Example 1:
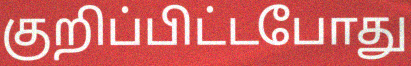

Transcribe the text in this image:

குறிப்பிட்டபோது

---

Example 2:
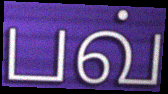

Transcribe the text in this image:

பவ்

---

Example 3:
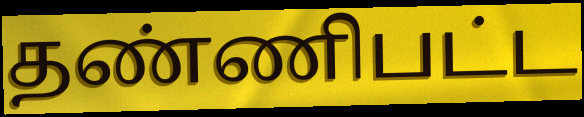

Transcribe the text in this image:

தண்ணிபட்ட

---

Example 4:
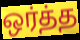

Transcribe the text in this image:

ஒர்த்த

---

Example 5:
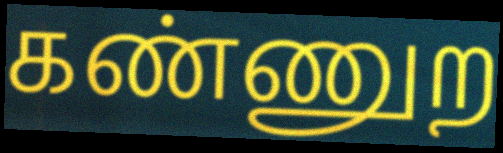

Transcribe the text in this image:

கண்ணுற